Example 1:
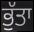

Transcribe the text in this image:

ਭੁੱਤਾ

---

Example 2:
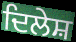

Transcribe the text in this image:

ਦਿਲੇਸ਼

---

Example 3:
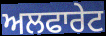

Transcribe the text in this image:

ਅਲਫਾਰੇਟ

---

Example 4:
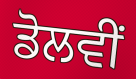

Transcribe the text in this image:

ਡੋਲਵੀਂ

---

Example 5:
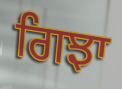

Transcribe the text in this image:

ਗਿਝਾ